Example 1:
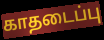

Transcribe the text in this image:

காதடைப்பு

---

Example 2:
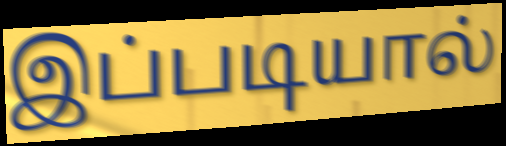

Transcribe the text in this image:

இப்படியால்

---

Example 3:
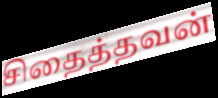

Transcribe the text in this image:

சிதைத்தவன்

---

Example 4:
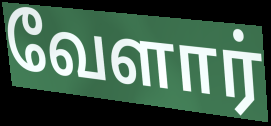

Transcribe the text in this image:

வேளார்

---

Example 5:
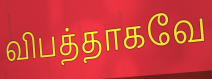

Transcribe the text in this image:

விபத்தாகவே